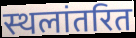
स्थलांतरित